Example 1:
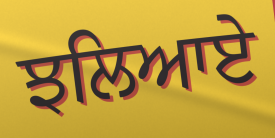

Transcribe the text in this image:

ਝਲਿਆਏ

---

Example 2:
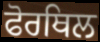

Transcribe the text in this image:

ਫੋਰਥਿਲ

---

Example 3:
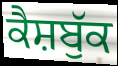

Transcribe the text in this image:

ਕੈਸ਼ਬੁੱਕ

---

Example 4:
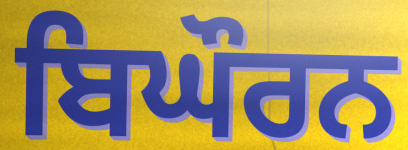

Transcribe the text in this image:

ਬਿਘੌਰਨ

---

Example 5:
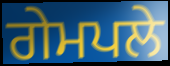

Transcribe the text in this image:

ਗੇਮਪਲੇ